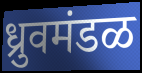
ध्रुवमंडळ